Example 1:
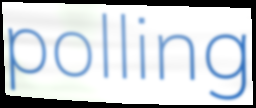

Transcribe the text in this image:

polling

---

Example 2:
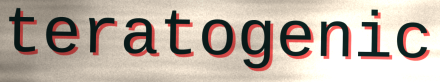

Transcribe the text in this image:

teratogenic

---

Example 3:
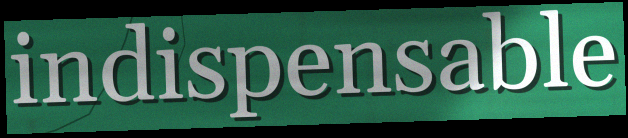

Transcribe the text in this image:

indispensable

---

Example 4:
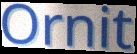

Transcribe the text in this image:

Ornit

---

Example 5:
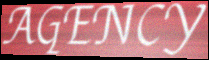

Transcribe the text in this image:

AGENCY